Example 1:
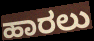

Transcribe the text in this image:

ಹಾರಲು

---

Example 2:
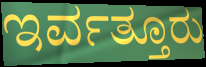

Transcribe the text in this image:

ಇರ್ವತ್ತೂರು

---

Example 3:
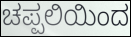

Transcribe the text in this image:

ಚಪ್ಪಲಿಯಿಂದ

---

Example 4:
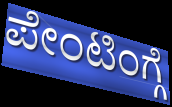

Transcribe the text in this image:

ಪೇಂಟಿಂಗ್ಗೆ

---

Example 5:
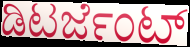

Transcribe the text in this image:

ಡಿಟರ್ಜೆಂಟ್